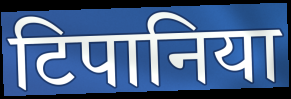
टिपानिया